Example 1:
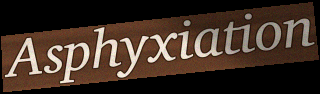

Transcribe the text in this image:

Asphyxiation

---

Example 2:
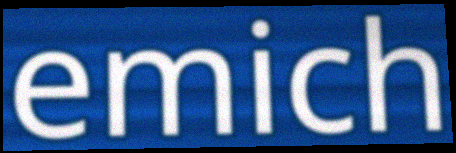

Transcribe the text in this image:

emich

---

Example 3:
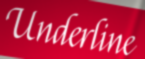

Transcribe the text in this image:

Underline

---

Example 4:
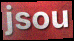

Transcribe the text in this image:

jsou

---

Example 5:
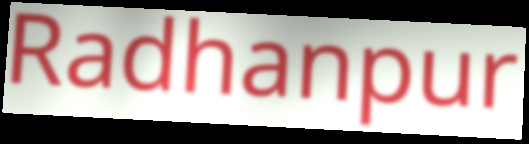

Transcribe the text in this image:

Radhanpur